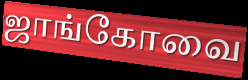
ஜாங்கோவை